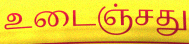
உடைஞ்சது